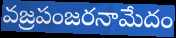
వజ్రపంజరనామేదం